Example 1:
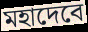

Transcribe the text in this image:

মহাদেবে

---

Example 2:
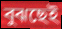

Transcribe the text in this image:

বুঝছেই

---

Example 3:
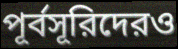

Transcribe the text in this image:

পূর্বসূরিদেরও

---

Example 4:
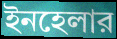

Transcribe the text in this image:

ইনহেলার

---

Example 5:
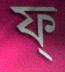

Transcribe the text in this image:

ফ্